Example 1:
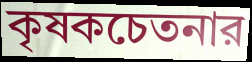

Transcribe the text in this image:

কৃষকচেতনার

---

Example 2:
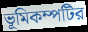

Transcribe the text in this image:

ভূমিকম্পটির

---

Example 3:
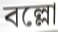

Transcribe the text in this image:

বল্লো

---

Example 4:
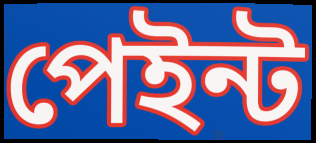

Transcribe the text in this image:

পেইন্ট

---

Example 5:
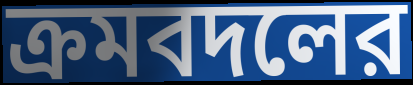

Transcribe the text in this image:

ক্রমবদলের